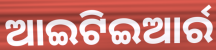
ଆଇଟିଇଆର୍ର